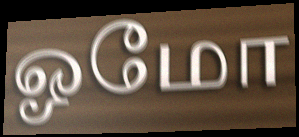
ஓமோ